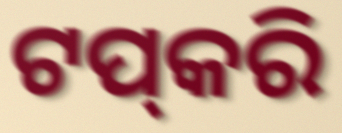
ଟପ୍‌କରି